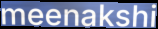
meenakshi